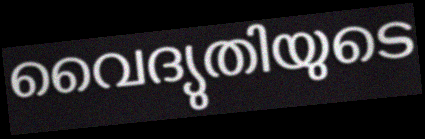
വൈദ്യുതിയുടെ